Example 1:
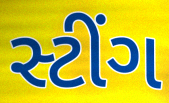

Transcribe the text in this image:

સ્ટીંગ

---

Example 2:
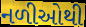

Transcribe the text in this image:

નળીઓથી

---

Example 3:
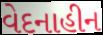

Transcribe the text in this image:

વેદનાહીન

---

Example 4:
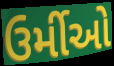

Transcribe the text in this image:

ઉર્મીઓ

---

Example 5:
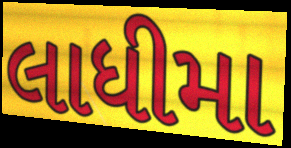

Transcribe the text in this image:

લાધીમા